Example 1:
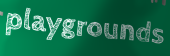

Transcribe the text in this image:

playgrounds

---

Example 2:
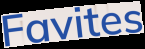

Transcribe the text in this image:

Favites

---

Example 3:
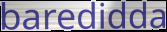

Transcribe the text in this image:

baredidda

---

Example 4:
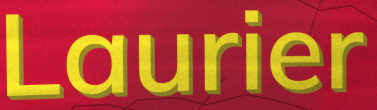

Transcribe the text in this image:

Laurier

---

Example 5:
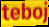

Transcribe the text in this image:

teboj